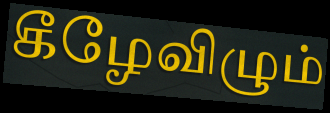
கீழேவிழும்